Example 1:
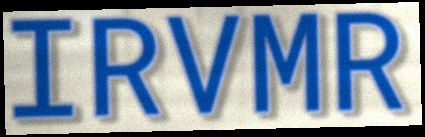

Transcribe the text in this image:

IRVMR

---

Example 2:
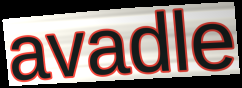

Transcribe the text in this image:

avadle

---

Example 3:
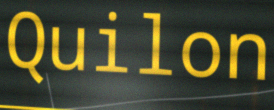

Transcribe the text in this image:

Quilon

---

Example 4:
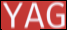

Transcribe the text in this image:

YAG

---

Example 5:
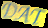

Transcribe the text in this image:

DAT